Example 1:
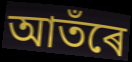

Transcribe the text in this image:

আতঁৰে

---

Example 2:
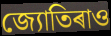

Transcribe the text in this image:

জ্যোতিৰাও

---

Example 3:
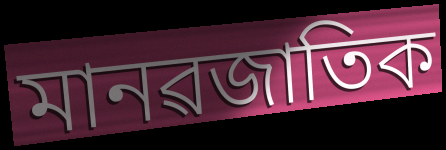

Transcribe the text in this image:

মানৱজাতিক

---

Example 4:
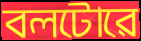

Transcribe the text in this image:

বলটোৱে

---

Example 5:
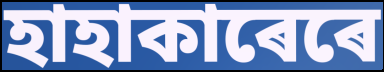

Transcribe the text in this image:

হাহাকাৰেৰে